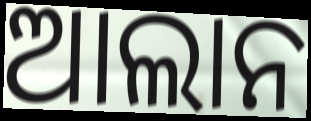
ଆଲାନ